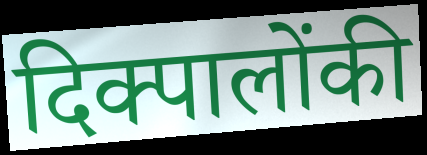
दिक्पालोंकी